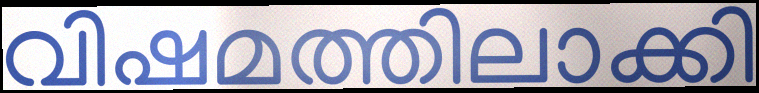
വിഷമത്തിലാക്കി